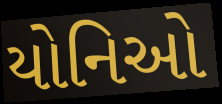
યોનિઓ